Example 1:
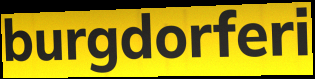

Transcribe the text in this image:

burgdorferi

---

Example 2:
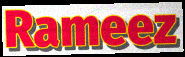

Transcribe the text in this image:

Rameez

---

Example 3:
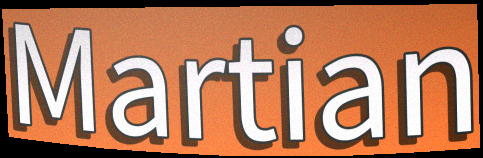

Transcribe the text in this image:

Martian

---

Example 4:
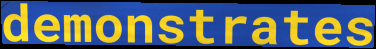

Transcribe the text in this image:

demonstrates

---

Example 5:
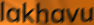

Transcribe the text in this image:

lakhavu